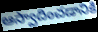
ఆస్వాదించడానికి